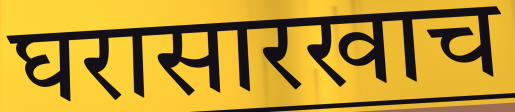
घरासारखाच